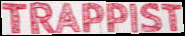
TRAPPIST